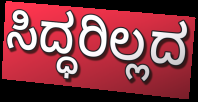
ಸಿದ್ಧರಿಲ್ಲದ